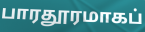
பாரதூரமாகப்